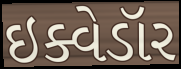
ઇક્વેડૉર